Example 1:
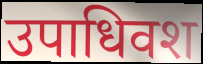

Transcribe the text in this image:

उपाधिवश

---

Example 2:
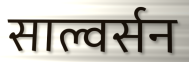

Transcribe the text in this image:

साल्वर्सन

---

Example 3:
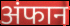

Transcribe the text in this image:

अंफान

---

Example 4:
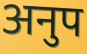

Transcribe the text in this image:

अनुप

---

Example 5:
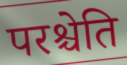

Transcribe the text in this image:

परश्चेति